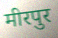
मीरपुर